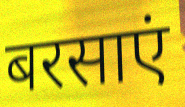
बरसाएं